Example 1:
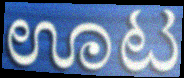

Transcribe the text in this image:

ಊಟ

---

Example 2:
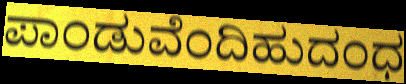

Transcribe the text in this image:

ಪಾಂಡುವೆಂದಿಹುದಂಧ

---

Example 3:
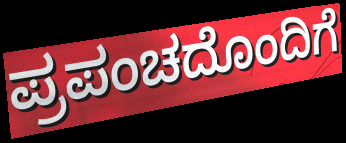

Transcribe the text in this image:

ಪ್ರಪಂಚದೊಂದಿಗೆ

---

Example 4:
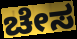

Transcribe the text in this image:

ಚೇಸ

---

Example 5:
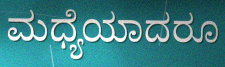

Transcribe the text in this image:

ಮಧ್ಯೆಯಾದರೂ